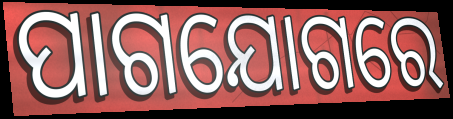
ପାଗଯୋଗରେ